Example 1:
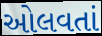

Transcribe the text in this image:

ઓલવતાં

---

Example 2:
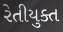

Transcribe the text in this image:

રેતીયુક્ત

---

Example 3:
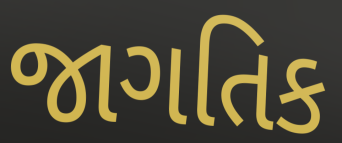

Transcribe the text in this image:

જાગતિક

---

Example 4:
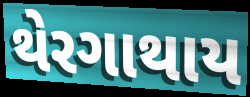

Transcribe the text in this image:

થેરગાથાય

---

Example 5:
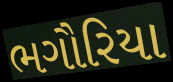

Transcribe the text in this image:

ભગૌરિયા